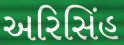
અરિસિંહ